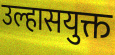
उल्हासयुक्त